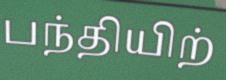
பந்தியிற்